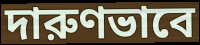
দারুণভাবে